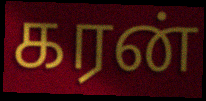
கரன்